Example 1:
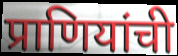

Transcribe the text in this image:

प्राणियांची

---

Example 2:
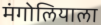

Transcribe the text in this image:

मंगोलियाला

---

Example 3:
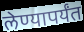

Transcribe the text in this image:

लेण्यापर्यंत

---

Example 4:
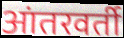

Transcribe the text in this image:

आंतरवर्ती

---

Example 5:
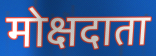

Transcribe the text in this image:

मोक्षदाता